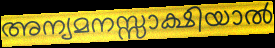
അന്യമനസ്സാക്ഷിയാൽ